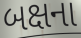
બક્ષના